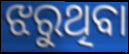
ଝରୁଥିବା